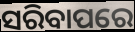
ସରିବାପରେ